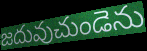
జదువుచుండెను